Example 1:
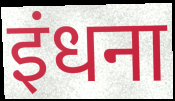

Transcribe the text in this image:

इंधना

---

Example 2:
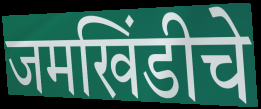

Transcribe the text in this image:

जमखिंडीचे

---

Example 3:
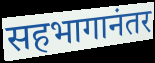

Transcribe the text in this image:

सहभागानंतर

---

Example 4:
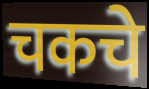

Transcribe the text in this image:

चकचे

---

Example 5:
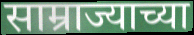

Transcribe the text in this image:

साम्राज्याच्या